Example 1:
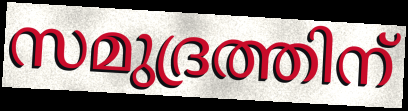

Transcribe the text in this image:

സമുദ്രത്തിന്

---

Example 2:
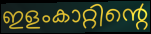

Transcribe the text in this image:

ഇളംകാറ്റിന്റെ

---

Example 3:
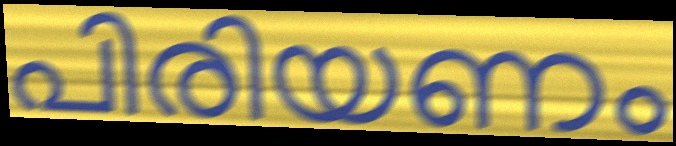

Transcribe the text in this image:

പിരിയണം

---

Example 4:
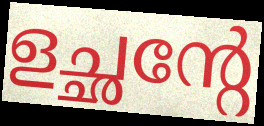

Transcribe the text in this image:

ളച്ഛന്റേ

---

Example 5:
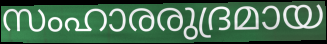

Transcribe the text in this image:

സംഹാരരുദ്രമായ